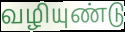
வழியுண்டு